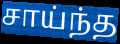
சாய்ந்த